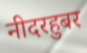
नीदरहुबर